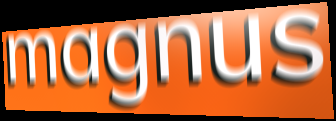
magnus